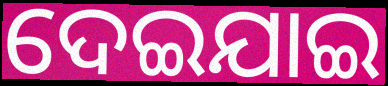
ଦେଇଯାଇ